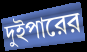
দুইপারের